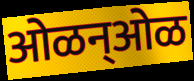
ओळन्ओळ